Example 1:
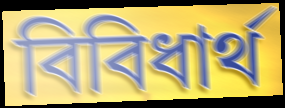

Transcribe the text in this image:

বিবিধার্থ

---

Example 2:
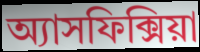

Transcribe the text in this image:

অ্যাসফিক্সিয়া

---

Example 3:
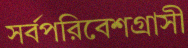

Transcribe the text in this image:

সর্বপরিবেশগ্রাসী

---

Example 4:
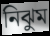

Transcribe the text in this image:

নিঝুম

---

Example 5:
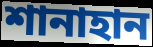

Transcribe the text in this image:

শানাহান